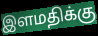
இளமதிக்கு